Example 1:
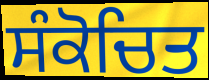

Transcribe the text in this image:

ਸੰਕੋਚਿਤ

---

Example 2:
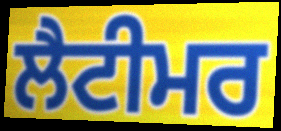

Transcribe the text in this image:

ਲੈਟੀਮਰ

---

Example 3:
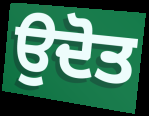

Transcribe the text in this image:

ਉਦੋਤ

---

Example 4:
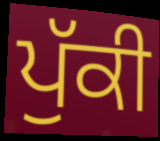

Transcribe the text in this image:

ਪੁੱਕੀ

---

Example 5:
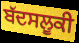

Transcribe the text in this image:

ਬੱਦਸਲੂਕੀ